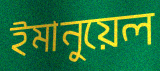
ইমানুয়েল